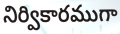
నిర్వికారముగా